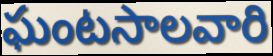
ఘంటసాలవారి